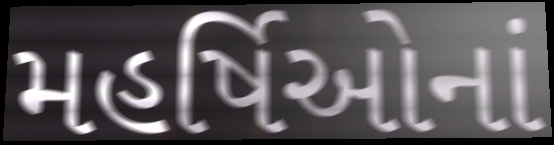
મહર્ષિઓનાં